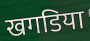
खगडिया